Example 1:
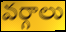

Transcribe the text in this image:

వర్గాలు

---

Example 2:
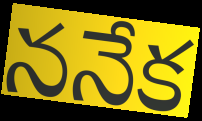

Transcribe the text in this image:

ననేక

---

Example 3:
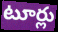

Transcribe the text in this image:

టూర్లు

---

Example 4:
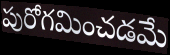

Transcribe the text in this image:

పురోగమించడమే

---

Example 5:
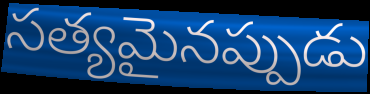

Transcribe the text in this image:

సత్యమైనప్పుడు